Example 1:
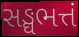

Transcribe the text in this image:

સઙ્ઘભત્તં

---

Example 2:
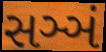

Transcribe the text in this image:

સઞ્ઞં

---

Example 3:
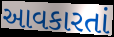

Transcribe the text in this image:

આવકારતાં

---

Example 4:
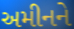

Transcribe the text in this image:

અમીનને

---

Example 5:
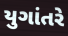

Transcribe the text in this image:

યુગાંતરે